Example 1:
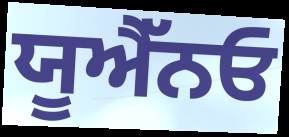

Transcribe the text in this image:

ਯੂਐੱਨਓ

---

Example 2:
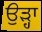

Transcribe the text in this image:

ਉੜ੍ਹਾ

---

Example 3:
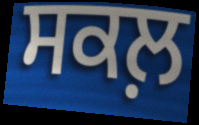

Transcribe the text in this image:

ਸਕਲ਼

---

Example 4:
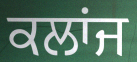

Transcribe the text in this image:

ਕਲਾਂਜ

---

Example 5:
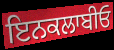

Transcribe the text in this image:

ਇਨਕਲਾਬੀਓ